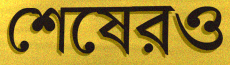
শেষেরও